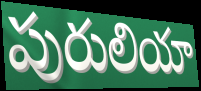
పురులియా